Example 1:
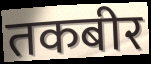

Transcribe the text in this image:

तकबीर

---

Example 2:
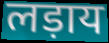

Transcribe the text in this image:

लड़ाय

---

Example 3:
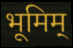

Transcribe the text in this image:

भूमिम्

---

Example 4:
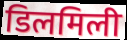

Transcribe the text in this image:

डिलमिली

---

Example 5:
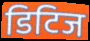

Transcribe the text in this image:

डिटिज